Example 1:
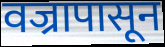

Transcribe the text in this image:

वज्रापासून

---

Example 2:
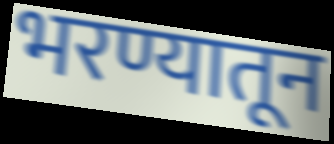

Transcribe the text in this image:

भरण्यातून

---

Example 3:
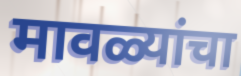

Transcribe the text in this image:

मावळ्यांचा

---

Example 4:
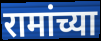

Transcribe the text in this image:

रामांच्या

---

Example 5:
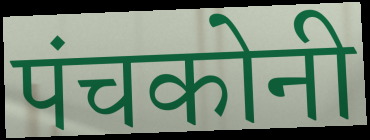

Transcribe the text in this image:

पंचकोनी